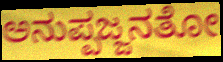
ಅನುಪ್ಪಜ್ಜನತೋ